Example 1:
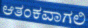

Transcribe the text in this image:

ಆತಂಕವಾಗಲಿ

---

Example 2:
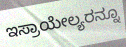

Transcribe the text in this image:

ಇಸ್ರಾಯೇಲ್ಯರನ್ನೂ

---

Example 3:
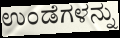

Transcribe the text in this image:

ಉಂಡೆಗಳನ್ನು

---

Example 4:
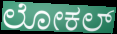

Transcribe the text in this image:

ಲೋಕಲ್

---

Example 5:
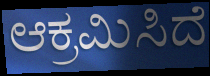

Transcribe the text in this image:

ಆಕ್ರಮಿಸಿದೆ